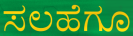
ಸಲಹೆಗೂ